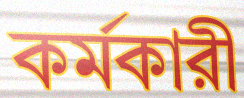
কর্মকারী